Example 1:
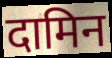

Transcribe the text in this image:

दामिन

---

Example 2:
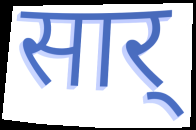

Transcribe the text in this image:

सार्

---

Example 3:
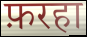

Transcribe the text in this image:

फ़रहा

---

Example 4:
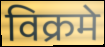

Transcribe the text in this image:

विक्रमे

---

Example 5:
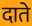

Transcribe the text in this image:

दाते